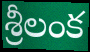
శ్రీలంక